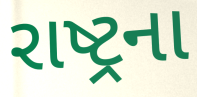
રાષ્ટ્રના